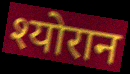
श्योरान